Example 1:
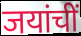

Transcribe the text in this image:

जयांचीं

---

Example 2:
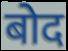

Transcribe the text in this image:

बोद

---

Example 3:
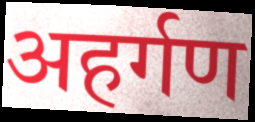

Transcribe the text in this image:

अहर्गण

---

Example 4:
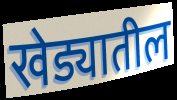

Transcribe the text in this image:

खेड्यातील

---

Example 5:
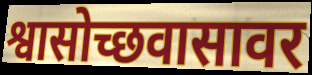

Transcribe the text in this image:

श्वासोच्छवासावर